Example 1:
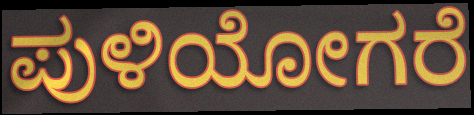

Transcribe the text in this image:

ಪುಳಿಯೋಗರೆ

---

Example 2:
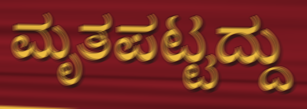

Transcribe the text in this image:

ಮೃತಪಟ್ಟದ್ದು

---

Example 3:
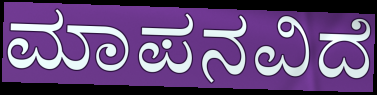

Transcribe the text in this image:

ಮಾಪನವಿದೆ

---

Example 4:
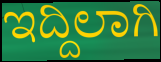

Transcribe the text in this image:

ಇದ್ದಿಲಾಗಿ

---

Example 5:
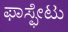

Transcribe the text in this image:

ಫಾಸ್ಫೇಟು